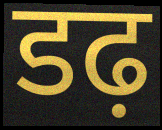
डढ़